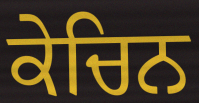
ਕੇਚਿਨ